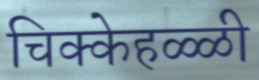
चिक्केहळ्ळी